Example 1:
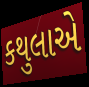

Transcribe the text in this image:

કથુલાએ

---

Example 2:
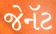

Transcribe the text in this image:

જેનૅટ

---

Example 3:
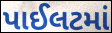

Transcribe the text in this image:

પાઈલટમાં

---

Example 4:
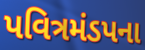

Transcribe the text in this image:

પવિત્રમંડપના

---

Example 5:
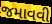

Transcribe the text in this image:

જમાવવી